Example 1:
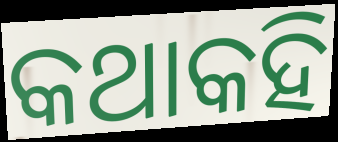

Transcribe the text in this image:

କଥାକହି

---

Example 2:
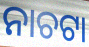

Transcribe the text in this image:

ନାଚଟା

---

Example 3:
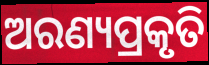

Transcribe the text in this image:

ଅରଣ୍ୟପ୍ରକୃତି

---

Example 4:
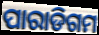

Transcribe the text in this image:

ପାରାଡିଗମ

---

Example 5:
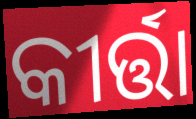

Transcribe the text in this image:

କୀର୍ତ୍ତା